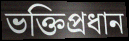
ভক্তিপ্রধান